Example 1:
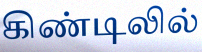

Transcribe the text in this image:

கிண்டிலில்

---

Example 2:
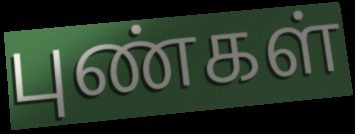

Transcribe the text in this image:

புண்கள்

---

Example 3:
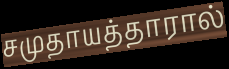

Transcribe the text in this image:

சமுதாயத்தாரால்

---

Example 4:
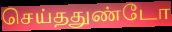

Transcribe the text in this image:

செய்ததுண்டோ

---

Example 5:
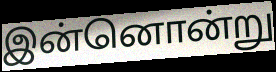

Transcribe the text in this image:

இன்னொன்று